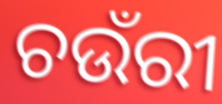
ଚଉଁରୀ